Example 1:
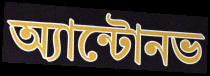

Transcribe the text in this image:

অ্যান্টোনভ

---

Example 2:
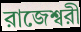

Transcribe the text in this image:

রাজেশ্বরী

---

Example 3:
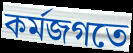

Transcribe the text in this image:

কর্মজগতে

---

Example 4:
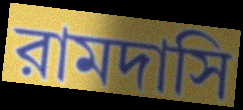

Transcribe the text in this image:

রামদাসি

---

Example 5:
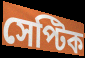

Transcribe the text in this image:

সেপ্টিক